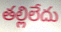
తల్లిలేదు